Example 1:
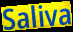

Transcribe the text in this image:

Saliva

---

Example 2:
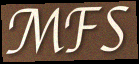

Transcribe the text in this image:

MFS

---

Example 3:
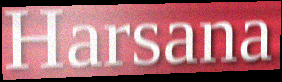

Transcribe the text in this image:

Harsana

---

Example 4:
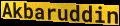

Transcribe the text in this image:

Akbaruddin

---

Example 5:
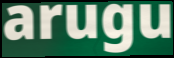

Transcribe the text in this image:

arugu